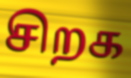
சிறக